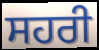
ਸਹਰੀ